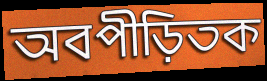
অবপীড়িতক